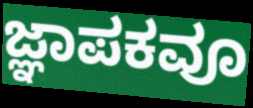
ಜ್ಞಾಪಕವೂ